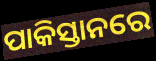
ପାକିସ୍ତାନରେ